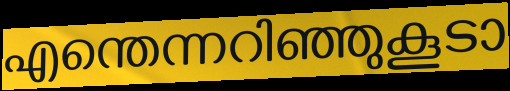
എന്തെന്നറിഞ്ഞുകൂടാ